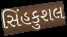
સિંહકુશલ